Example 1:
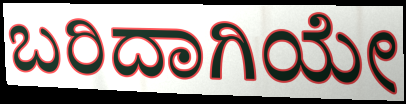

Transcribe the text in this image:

ಬರಿದಾಗಿಯೇ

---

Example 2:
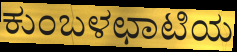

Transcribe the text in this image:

ಕುಂಬಳಛಾಟಿಯ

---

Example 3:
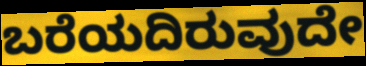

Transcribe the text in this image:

ಬರೆಯದಿರುವುದೇ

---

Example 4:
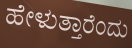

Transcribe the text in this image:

ಹೇಳುತ್ತಾರೆಂದು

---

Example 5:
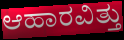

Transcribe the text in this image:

ಆಹಾರವಿತ್ತು